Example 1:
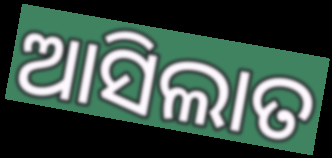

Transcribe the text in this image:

ଆସିଲାତ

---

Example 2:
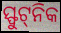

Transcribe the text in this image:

ସ୍ଫୁଟ୍‌ନିକ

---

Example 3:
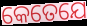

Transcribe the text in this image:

କେତେଯେ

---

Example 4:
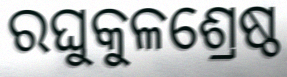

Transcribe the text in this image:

ରଘୁକୁଳଶ୍ରେଷ୍ଠ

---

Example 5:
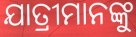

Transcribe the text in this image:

ଯାତ୍ରୀମାନଙ୍କୁ